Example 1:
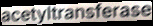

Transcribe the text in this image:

acetyltransferase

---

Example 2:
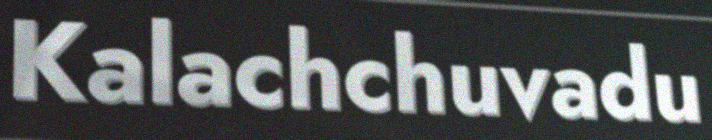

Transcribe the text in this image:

Kalachchuvadu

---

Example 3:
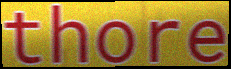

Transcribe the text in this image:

thore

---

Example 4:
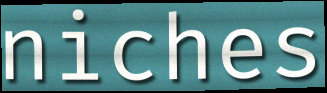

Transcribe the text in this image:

niches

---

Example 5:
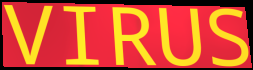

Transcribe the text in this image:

VIRUS